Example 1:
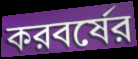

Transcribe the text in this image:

করবর্ষের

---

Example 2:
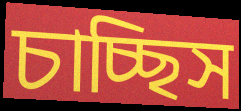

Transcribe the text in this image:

চাচ্ছিস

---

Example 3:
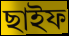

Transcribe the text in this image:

ছাইফ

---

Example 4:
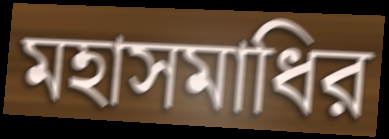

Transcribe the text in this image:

মহাসমাধির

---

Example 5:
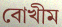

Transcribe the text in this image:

বোখীম